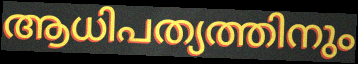
ആധിപത്യത്തിനും